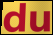
du